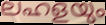
ലഹളയും